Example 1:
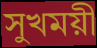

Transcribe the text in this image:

সুখময়ী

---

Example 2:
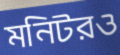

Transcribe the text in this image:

মনিটরও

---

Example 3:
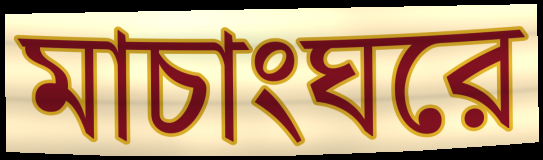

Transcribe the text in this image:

মাচাংঘরে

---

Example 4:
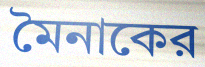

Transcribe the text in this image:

মৈনাকের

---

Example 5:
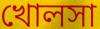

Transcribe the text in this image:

খোলসা